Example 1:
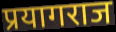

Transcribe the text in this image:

प्रयागराज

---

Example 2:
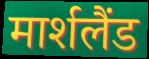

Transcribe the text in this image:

मार्शलैंड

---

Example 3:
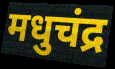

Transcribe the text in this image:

मधुचंद्र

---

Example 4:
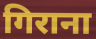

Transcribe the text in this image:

गिराना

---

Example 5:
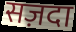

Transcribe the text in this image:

सज़दा